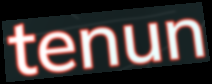
tenun